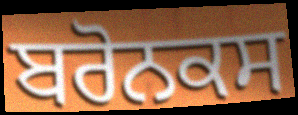
ਬਰੋਨਕਸ